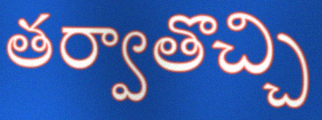
తర్వాతొచ్చి